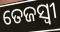
ତେଜସ୍ବୀ